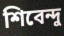
শিবেন্দু